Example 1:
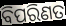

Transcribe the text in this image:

ବିପରିଣତ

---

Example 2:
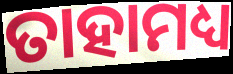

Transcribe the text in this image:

ତାହାମଧ୍ୟ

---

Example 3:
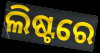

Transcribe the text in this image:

ଲିଷ୍ଟରେ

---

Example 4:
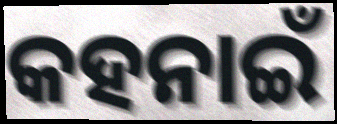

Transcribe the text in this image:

କହନାଇଁ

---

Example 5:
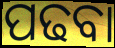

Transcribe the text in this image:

ପଢବା